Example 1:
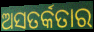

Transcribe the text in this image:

ଅସତର୍କତାର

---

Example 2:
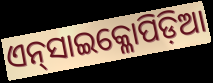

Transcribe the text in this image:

ଏନ୍‌ସାଇକ୍ଳୋପିଡ଼ିଆ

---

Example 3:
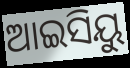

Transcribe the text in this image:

ଆଇସିୟୁ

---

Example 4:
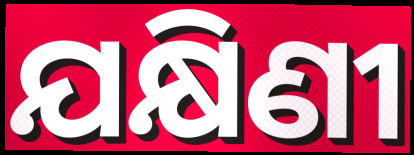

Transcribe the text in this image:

ଯକ୍ଷିଣୀ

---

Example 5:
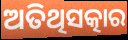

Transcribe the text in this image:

ଅତିଥିସତ୍କାର